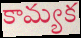
కామ్యక